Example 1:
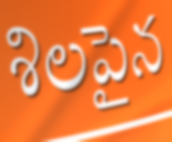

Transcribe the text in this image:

శిలపైన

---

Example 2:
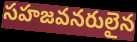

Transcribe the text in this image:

సహజవనరులైన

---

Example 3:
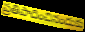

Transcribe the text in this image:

ప్రతిపాదించినందుకు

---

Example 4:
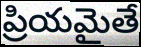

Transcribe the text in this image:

ప్రియమైతే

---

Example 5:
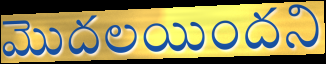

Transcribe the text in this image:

మొదలయిందని